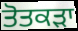
ਤੋਤਕੜਾ